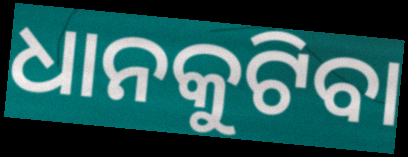
ଧାନକୁଟିବା